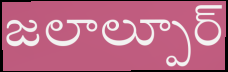
జలాల్పూర్